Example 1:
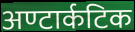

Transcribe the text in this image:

अण्टार्कटिक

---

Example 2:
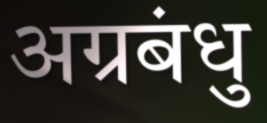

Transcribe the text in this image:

अग्रबंधु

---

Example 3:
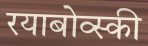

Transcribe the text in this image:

रयाबोव्स्की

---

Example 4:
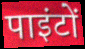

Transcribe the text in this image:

पाइंटों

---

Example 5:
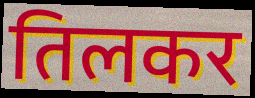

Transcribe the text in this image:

तिलकर